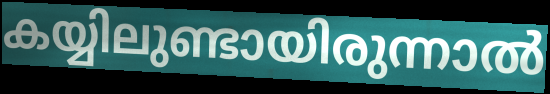
കയ്യിലുണ്ടായിരുന്നാൽ